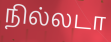
நில்லடா